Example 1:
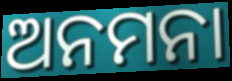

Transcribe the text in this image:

ଅନମନା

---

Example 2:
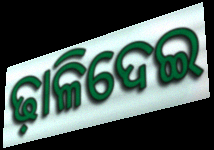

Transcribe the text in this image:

ଢ଼ାଳିଦେଇ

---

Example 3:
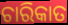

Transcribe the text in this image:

ଚାରିକାତ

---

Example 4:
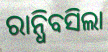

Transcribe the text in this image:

ରାନ୍ଧିବସିଲା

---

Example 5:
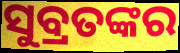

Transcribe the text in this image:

ସୁବ୍ରତଙ୍କର